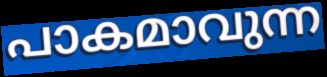
പാകമാവുന്ന